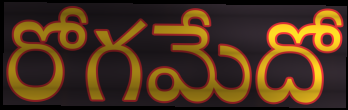
రోగమేదో